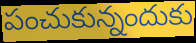
పంచుకున్నందుకు